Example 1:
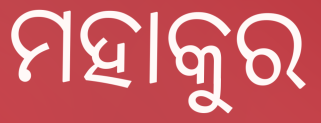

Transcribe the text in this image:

ମହାକୁର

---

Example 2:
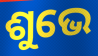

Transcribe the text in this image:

ଶୁଭେ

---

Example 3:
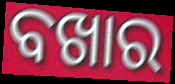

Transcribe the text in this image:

ବଖାର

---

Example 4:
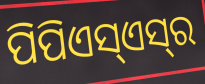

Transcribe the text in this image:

ପିପିଏସ୍ଏସ୍‌ର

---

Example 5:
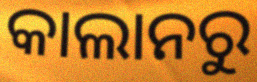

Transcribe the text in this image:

କାଲାନରୁ